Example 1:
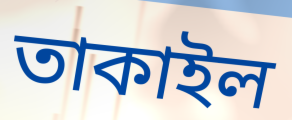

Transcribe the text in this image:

তাকাইল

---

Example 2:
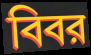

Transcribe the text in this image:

বিবর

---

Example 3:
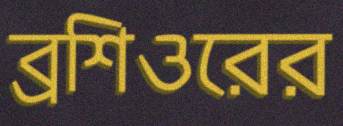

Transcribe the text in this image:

ব্রশিওরের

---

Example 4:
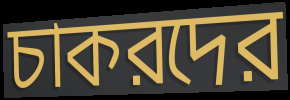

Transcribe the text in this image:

চাকরদের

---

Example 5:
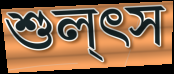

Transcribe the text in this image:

শুল্ৎস